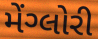
મેંગ્લોરી